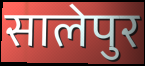
सालेपुर